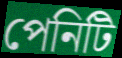
পেনিটি